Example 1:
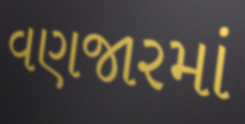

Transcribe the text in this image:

વણજારમાં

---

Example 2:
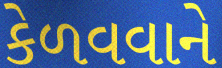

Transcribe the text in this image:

કેળવવાને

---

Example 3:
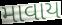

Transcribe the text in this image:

માવાય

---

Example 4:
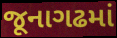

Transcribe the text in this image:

જૂનાગઢમાં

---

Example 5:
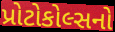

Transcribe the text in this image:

પ્રોટોકોલ્સનો